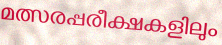
മത്സരപ്പരീക്ഷകളിലും